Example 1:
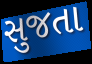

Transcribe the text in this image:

સુજતા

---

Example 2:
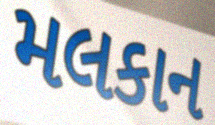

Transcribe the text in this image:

મલકાન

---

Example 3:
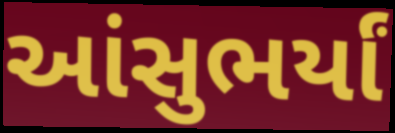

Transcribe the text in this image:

આંસુભર્યાં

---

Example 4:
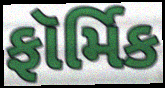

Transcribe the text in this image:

ફૉર્મિક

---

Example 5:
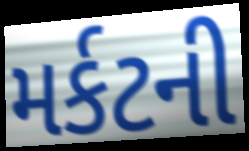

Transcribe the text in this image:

મર્કટની